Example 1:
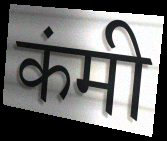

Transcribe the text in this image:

कंमी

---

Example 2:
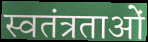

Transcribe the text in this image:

स्वतंत्रताओं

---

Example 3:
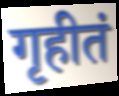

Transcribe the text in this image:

गृहीतं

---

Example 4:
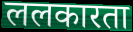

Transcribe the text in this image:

ललकारता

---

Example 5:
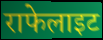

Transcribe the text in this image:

राफेलाइट